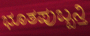
ಭೂತಪುಬ್ಬನ್ತಿ